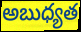
అబుధ్యత